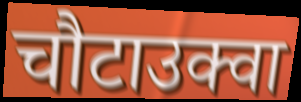
चौटाउक्वा